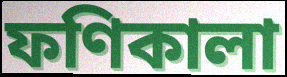
ফণিকালা